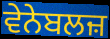
ਵੇਨੇਬਲਜ਼